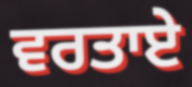
ਵਰਤਾਏ